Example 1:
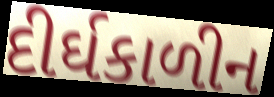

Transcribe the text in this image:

દીર્ઘકાળીન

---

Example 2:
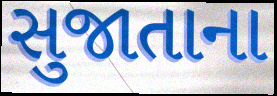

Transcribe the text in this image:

સુજાતાના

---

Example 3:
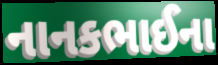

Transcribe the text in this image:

નાનકભાઈના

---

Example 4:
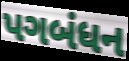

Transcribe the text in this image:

પગબંધન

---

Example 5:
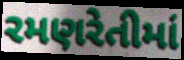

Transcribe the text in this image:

રમણરેતીમાં